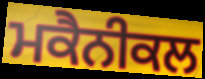
ਮਕੈਨੀਕਲ